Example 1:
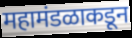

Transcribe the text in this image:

महामंडळाकडून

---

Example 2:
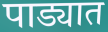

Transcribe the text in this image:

पाड्यात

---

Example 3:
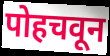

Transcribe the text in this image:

पोहचवून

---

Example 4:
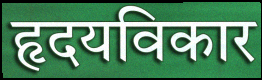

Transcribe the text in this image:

हृदयविकार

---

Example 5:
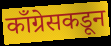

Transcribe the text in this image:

काँग्रेसकडून